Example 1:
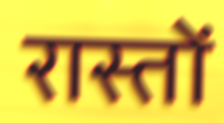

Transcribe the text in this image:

रास्‍तों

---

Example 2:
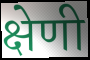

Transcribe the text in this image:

क्षेणी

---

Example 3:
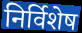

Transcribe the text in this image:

निर्विशेष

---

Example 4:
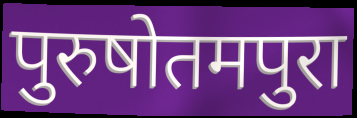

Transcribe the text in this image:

पुरुषोतमपुरा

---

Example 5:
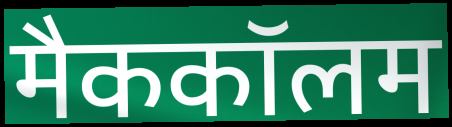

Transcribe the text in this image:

मैककॉलम